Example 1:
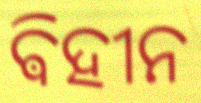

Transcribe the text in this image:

ଵିହୀନ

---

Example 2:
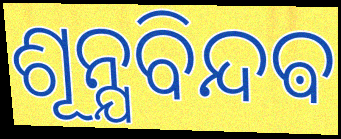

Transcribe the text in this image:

ଶୂନ୍ଯବିନ୍ଦଵ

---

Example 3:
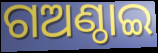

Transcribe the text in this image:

ଗଅଣ୍ଠାଇ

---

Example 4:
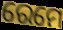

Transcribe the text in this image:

ରେମେ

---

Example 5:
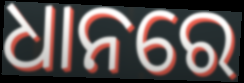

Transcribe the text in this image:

ଧାନରେ